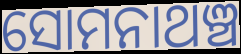
ସୋମନାଥଞ୍ଚ